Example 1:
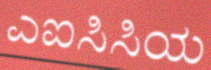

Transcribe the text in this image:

ಎಐಸಿಸಿಯ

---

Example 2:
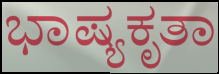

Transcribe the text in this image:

ಭಾಷ್ಯಕೃತಾ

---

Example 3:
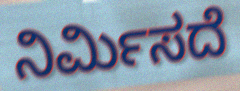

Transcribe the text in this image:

ನಿರ್ಮಿಸದೆ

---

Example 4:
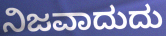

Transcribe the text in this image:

ನಿಜವಾದುದು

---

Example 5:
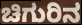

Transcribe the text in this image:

ಚಿಗುರಿನ